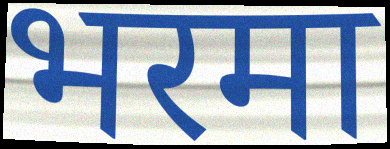
भरमा